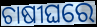
ଚାଷୀଘରେ